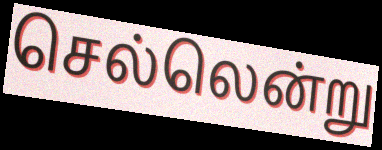
செல்லென்று